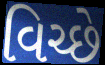
વિચ્છે